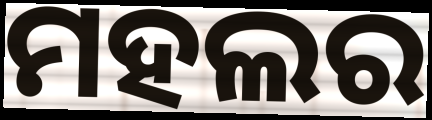
ମହଲର